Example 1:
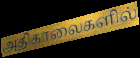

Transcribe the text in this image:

அதிகாலைகளில்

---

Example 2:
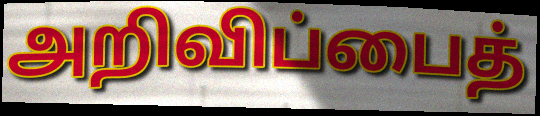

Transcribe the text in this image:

அறிவிப்பைத்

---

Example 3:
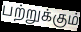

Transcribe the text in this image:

பற்றுக்கும்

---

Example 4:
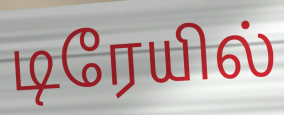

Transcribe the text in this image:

டிரேயில்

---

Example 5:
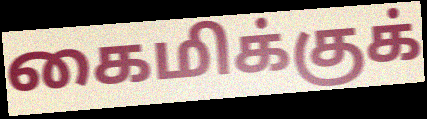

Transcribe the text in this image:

கைமிக்குக்